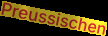
Preussischen